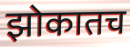
झोकातच